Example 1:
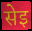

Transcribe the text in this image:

सेइ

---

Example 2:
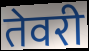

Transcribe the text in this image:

तेवरी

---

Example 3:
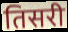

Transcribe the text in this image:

तिसरी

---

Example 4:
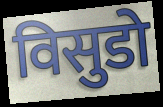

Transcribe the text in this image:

विसुडो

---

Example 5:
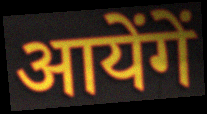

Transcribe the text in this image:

आयेंगें